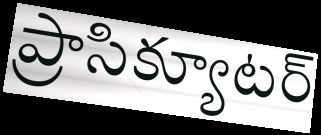
ప్రాసిక్యూటర్